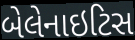
બેલેનાઇટિસ